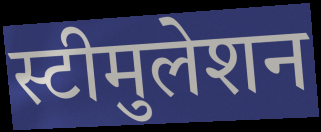
स्टीमुलेशन